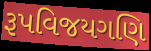
રૂપવિજયગણિ